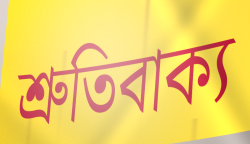
শ্রুতিবাক্য